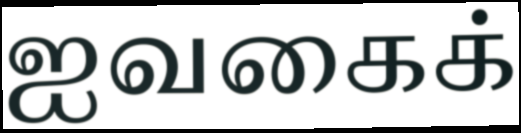
ஐவகைக்